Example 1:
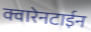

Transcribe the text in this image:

क्वारेनटाईन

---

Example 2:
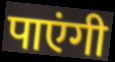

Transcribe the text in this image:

पाएंगी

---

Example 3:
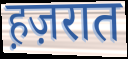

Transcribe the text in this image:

ह़ज़रात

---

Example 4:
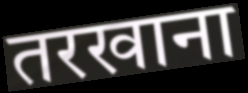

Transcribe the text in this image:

तरखाना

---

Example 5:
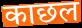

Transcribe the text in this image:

काछल